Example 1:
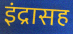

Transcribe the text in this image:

इंद्रासह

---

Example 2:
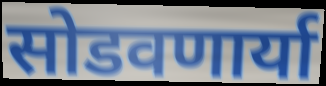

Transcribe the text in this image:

सोडवणार्या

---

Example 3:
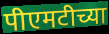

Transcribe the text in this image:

पीएमटीच्या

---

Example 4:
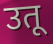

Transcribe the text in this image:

उतू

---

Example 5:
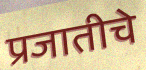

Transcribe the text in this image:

प्रजातीचे